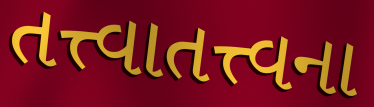
તત્ત્વાતત્ત્વના